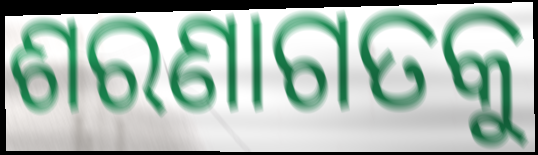
ଶରଣାଗତକୁ